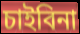
চাইবিনা